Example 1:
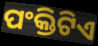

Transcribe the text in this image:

ପଂକ୍ତିଟିଏ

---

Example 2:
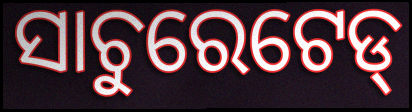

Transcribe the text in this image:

ସାଚୁରେଟେଡ୍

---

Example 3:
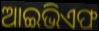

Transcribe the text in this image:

ଆଇଭିଏଫ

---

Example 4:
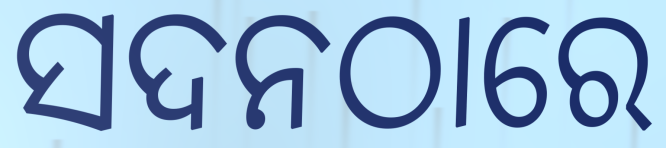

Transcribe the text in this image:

ସଦନଠାରେ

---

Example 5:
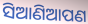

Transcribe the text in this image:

ସିଆଣିଆପଣ